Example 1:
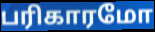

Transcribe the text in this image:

பரிகாரமோ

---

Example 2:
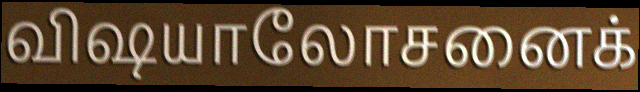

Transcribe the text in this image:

விஷயாலோசனைக்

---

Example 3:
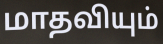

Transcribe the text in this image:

மாதவியும்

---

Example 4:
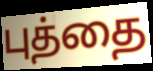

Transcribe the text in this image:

புத்தை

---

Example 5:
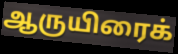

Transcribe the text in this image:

ஆருயிரைக்